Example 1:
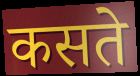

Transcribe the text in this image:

कसते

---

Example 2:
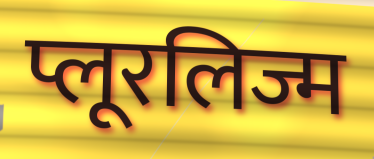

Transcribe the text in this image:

प्लूरलिज्म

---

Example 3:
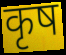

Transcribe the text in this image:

कृष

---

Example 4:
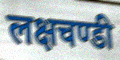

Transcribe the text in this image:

लक्षचण्डी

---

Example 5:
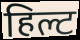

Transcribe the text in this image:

हिल्ट